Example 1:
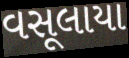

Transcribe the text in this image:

વસૂલાયા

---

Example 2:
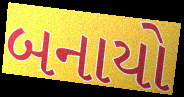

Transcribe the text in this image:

બનાયો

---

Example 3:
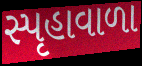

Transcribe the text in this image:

સ્પૃહાવાળા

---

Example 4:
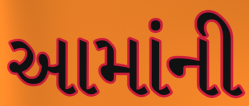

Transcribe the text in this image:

આમાંની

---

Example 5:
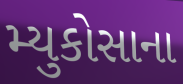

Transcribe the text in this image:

મ્યુકોસાના